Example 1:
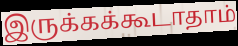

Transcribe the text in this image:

இருக்கக்கூடாதாம்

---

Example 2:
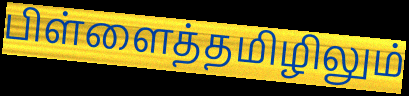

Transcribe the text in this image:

பிள்ளைத்தமிழிலும்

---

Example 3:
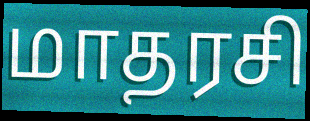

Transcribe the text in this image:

மாதரசி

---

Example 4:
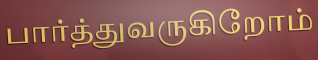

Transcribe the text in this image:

பார்த்துவருகிறோம்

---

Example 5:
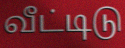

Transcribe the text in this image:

வீட்டிடு